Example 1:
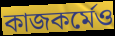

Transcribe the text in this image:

কাজকর্মেও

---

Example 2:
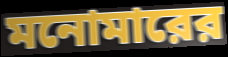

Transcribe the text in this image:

মনোমারের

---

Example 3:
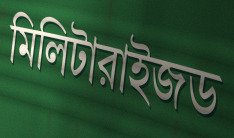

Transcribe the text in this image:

মিলিটারাইজড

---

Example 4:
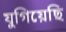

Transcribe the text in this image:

যুগিয়েছি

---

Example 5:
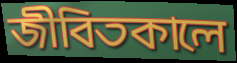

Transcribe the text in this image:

জীবিতকালে